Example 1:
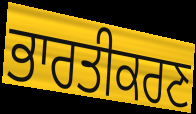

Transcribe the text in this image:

ਭਾਰਤੀਕਰਣ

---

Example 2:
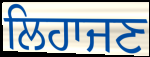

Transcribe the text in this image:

ਲਿਹਾਜਣ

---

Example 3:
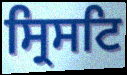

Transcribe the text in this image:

ਸ੍ਰਿਸਟਿ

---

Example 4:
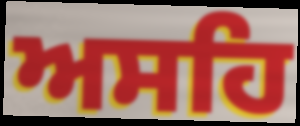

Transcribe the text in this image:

ਅਸਹਿ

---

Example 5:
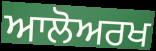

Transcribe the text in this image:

ਆਲੋਅਰਖ